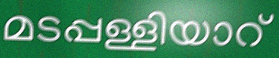
മടപ്പള്ളിയാറ്